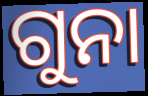
ଗୁନା